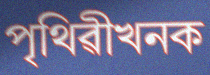
পৃথিৱীখনক